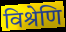
विश्रेणि